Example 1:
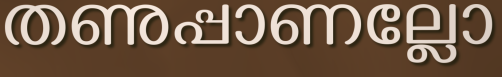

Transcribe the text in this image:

തണുപ്പാണല്ലോ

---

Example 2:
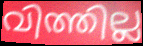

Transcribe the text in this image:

വിത്തില്ല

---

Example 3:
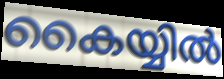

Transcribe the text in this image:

കൈയ്യിൽ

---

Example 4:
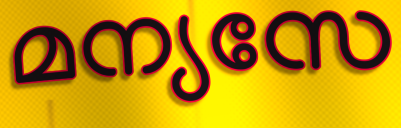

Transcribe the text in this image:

മന്യസേ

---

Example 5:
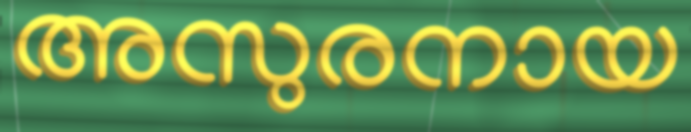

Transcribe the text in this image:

അസുരനായ